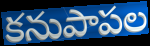
కనుపాపల